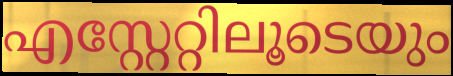
എസ്റ്റേറ്റിലൂടെയും